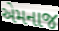
એમનાજ